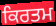
ਕਿਰਤਮ